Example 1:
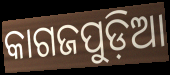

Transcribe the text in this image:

କାଗଜପୁଡ଼ିଆ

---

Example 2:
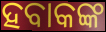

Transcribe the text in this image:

ହବାକଙ୍କ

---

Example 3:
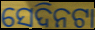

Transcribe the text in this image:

ସେଦିନଟା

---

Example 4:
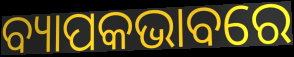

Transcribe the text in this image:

ବ୍ୟାପକଭାବରେ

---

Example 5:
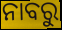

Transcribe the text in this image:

ନାବରୁ